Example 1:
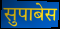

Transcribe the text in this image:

सुपाबेस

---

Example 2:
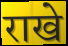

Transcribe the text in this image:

राखे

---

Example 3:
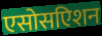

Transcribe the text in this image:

एसोसएिशन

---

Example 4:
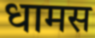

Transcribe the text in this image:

धामस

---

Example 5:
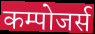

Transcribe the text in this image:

कम्पोजर्स